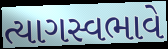
ત્યાગસ્વભાવે